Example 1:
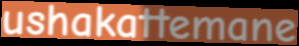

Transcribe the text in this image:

ushakattemane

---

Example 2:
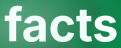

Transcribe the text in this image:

facts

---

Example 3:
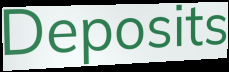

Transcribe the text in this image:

Deposits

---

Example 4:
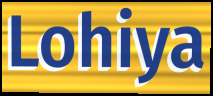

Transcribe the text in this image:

Lohiya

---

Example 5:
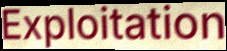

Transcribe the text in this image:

Exploitation